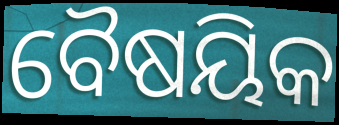
ବୈଷୟିକ